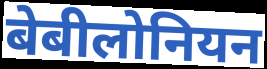
बेबीलोनियन